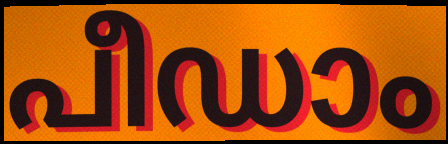
പീഡാം